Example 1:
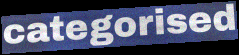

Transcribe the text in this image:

categorised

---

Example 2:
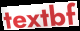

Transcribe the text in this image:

textbf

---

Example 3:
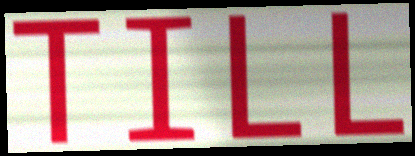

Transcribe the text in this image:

TILL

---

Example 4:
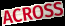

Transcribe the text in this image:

ACROSS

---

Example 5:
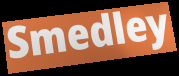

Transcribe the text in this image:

Smedley